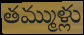
తమ్ముళ్లు